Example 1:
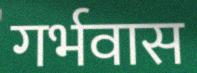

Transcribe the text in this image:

गर्भवास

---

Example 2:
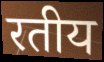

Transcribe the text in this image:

रतीय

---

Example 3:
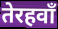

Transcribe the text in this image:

तेरहवाँ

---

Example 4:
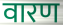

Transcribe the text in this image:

वारण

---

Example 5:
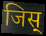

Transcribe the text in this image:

जिस्